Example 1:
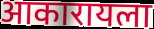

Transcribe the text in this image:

आकारायला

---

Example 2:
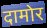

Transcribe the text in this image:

दामोर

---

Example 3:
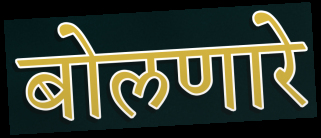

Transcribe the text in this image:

बोलणारे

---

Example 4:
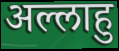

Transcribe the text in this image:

अल्लाहु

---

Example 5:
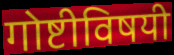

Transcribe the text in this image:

गोष्टीविषयी